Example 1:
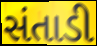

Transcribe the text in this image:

સંતાડી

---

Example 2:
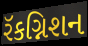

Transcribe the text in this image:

રૅકગ્નિશન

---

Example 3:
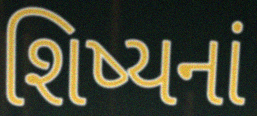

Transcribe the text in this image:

શિષ્યનાં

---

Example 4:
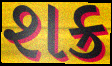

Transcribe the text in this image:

શક્ર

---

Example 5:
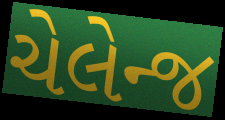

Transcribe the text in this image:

ચેલેન્જ